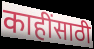
काहींसाठी